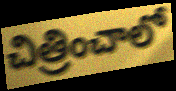
చిత్రించాలో